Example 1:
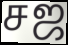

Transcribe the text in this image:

சஜ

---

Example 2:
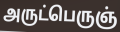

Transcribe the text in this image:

அருட்பெருஞ்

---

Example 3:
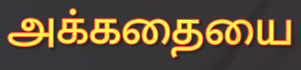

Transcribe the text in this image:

அக்கதையை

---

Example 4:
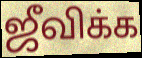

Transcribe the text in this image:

ஜீவிக்க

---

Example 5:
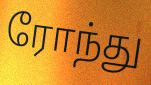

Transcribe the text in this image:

ரோந்து